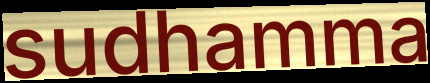
sudhamma